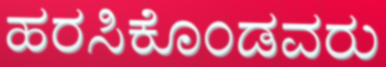
ಹರಸಿಕೊಂಡವರು